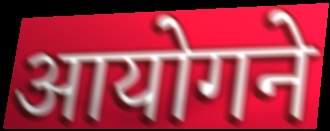
आयोगने